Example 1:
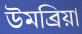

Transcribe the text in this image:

উমব্রিয়া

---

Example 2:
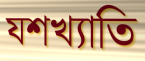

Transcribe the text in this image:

যশখ্যাতি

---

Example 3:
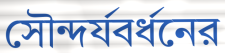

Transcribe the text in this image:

সৌন্দর্যবর্ধনের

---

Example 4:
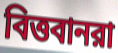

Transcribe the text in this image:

বিত্তবানরা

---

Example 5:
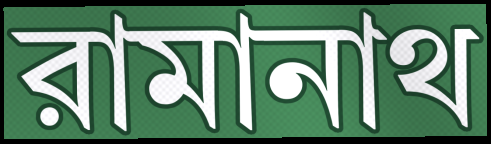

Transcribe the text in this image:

রামানাথ